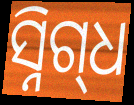
ସ୍ନିଗ୍‌ଧ